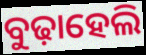
ବୁଢ଼ାହେଲି